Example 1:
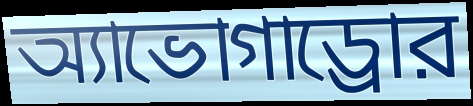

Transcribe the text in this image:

অ্যাভোগাড্রোর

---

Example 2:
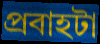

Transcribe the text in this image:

প্রবাহটা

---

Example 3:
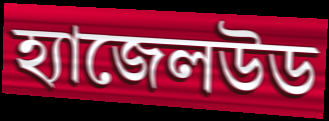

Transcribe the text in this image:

হ্যাজেলউড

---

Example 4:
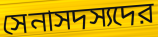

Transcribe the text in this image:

সেনাসদস্যদের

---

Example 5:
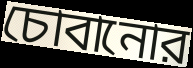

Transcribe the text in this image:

চোবানোর